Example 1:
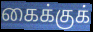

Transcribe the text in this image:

கைக்குக்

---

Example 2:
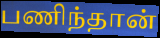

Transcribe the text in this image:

பணிந்தான்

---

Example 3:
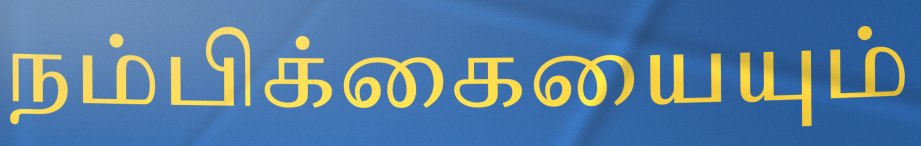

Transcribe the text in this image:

நம்பிக்கையையும்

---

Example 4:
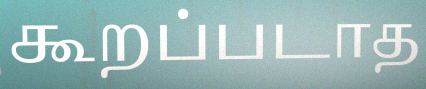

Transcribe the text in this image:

கூறப்படாத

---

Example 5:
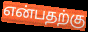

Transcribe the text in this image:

என்பதற்கு